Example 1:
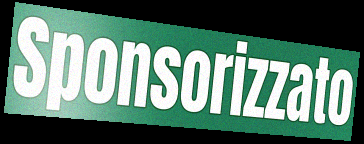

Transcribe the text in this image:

Sponsorizzato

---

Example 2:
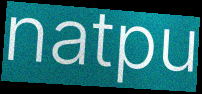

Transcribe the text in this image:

natpu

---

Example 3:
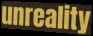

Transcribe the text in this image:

unreality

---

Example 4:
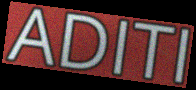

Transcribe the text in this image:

ADITI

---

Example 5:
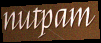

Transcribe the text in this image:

nutpam